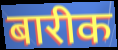
बारीक